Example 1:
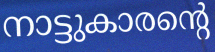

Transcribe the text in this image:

നാട്ടുകാരന്റെ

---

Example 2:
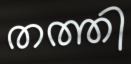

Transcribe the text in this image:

തത്തി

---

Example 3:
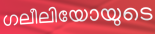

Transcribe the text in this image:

ഗലീലിയോയുടെ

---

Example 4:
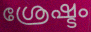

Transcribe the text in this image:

ശ്രേഷ്ടം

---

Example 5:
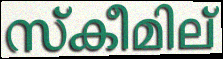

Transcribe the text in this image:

സ്കീമില്